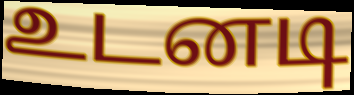
உடனடி